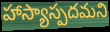
హాస్యాస్పదమని